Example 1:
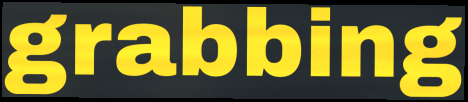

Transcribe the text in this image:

grabbing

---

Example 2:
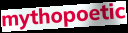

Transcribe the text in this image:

mythopoetic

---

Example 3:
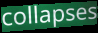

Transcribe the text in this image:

collapses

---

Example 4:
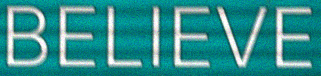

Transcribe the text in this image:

BELIEVE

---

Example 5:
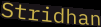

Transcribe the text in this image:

Stridhan